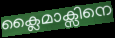
ക്ലൈമാക്സിനെ